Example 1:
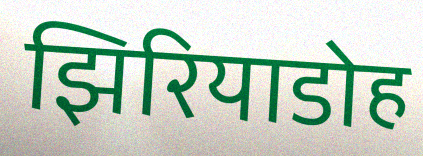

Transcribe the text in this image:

झिरियाडोह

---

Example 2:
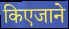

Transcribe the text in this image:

किएजाने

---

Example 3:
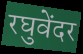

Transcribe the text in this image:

रघुवेंदर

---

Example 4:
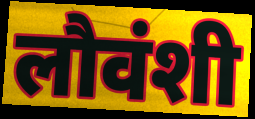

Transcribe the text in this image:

लौवंशी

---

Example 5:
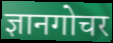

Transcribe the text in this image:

ज्ञानगोचर